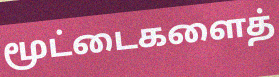
மூட்டைகளைத்